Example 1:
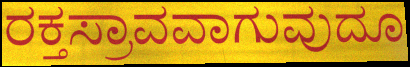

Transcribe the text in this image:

ರಕ್ತಸ್ರಾವವಾಗುವುದೂ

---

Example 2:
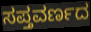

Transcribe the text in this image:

ಸಪ್ತವರ್ಣದ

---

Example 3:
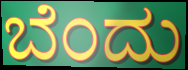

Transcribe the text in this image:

ಬೆಂದು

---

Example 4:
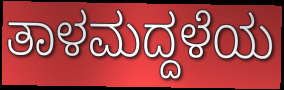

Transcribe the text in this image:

ತಾಳಮದ್ದಳೆಯ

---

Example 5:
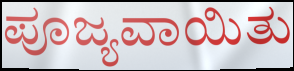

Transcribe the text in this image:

ಪೂಜ್ಯವಾಯಿತು